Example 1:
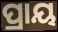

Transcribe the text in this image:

ପ୍ରାୟ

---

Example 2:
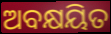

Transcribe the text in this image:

ଅବକ୍ଷୟିତ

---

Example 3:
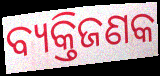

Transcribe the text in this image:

ବ୍ୟକ୍ତିଜଣକ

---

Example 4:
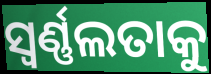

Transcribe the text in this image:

ସ୍ଵର୍ଣ୍ଣଲତାକୁ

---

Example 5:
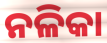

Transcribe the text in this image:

ନଳିକା